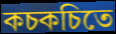
কচকচিতে